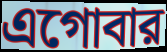
এগোবার